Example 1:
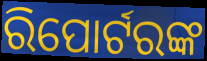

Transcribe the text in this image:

ରିପୋର୍ଟରଙ୍କ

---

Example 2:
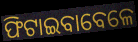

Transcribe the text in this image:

ଫିଟାଇବାବେଳେ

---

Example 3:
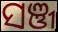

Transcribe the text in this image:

ସଞ୍ଜ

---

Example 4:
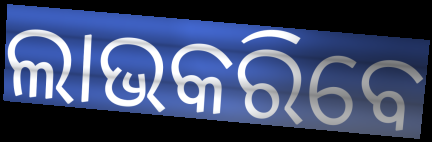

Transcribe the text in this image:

ଲାଭକରିବେ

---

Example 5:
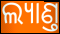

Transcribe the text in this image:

ଲ୍ୟାଣ୍ତ